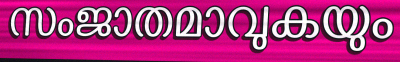
സംജാതമാവുകയും